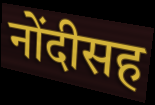
नोंदीसह